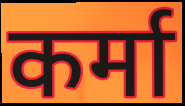
कर्मा